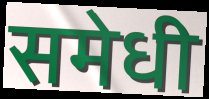
समेधी